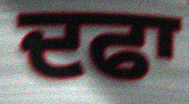
ਦਫਾ